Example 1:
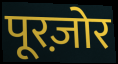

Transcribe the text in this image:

पूरज़ोर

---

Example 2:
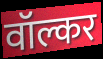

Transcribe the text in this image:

वॉल्कर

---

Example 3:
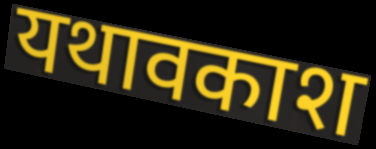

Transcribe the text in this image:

यथावकाश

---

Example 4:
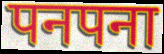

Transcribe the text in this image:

पनपना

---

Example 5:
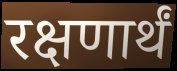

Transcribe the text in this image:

रक्षणार्थं